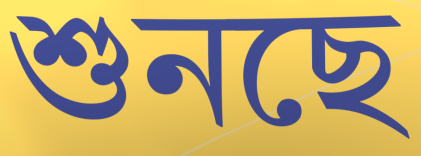
শুনছে